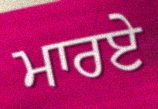
ਮਾਰਏ